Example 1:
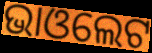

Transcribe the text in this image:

ଭାଓଲେଟ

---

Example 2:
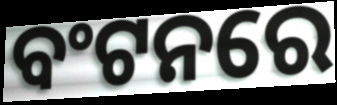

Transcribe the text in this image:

ବଂଟନରେ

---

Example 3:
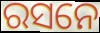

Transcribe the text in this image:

ରସନେ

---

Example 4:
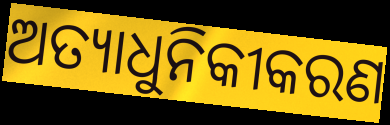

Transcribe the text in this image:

ଅତ୍ୟାଧୁନିକୀକରଣ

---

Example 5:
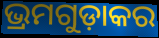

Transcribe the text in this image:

ଭ୍ରମଗୁଡ଼ାକର